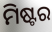
ମିଷ୍ଟର